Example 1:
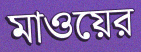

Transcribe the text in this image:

মাওয়ের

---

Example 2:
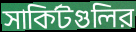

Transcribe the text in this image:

সার্কিটগুলির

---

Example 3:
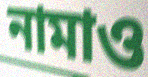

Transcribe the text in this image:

নামাও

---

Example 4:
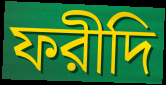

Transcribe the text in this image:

ফরীদি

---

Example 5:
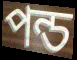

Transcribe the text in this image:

পন্ড